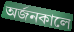
অর্জনকালে